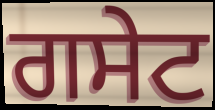
ਗਸੇਟ